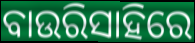
ବାଉରିସାହିରେ